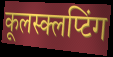
कूलस्क्लप्टिंग